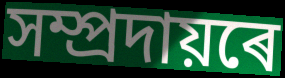
সম্প্ৰদায়ৰে